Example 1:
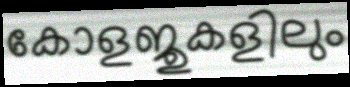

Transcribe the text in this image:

കോളജുകളിലും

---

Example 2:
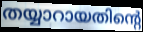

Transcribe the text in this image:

തയ്യാറായതിന്റെ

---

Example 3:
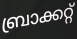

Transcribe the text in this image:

ബ്രാക്കറ്റ്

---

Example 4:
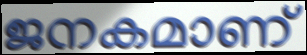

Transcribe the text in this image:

ജനകമാണ്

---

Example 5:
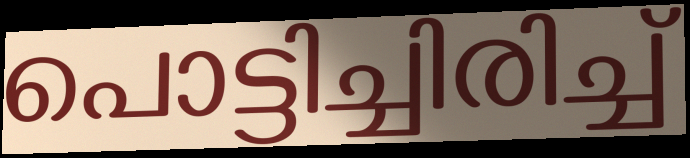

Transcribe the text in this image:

പൊട്ടിച്ചിരിച്ച്